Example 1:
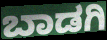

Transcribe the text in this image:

ಬಾಡಗಿ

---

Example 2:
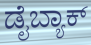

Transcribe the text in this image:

ಡೈಬ್ಯಾಕ್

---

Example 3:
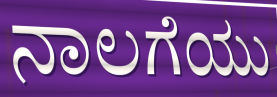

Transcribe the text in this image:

ನಾಲಗೆಯು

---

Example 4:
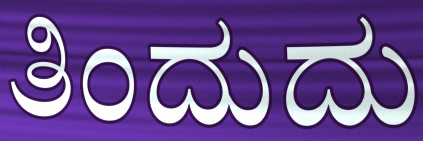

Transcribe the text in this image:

ತಿಂದುದು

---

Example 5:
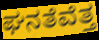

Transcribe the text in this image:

ಘನತೆವೆತ್ತ